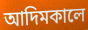
আদিমকালে